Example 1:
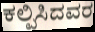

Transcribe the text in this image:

ಕಲ್ಪಿಸಿದವರ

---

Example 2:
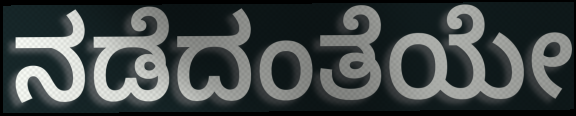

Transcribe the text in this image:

ನಡೆದಂತೆಯೇ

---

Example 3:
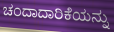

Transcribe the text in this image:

ಚಂದಾದಾರಿಕೆಯನ್ನು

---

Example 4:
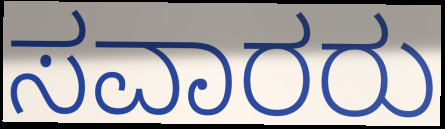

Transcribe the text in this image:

ಸವಾರರು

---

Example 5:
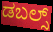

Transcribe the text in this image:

ಡಬಲ್ಸ್